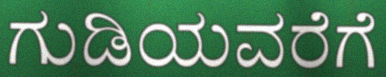
ಗುಡಿಯವರೆಗೆ